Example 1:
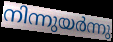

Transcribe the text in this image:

നിന്നുയർന്നു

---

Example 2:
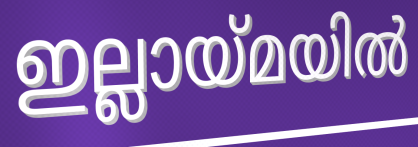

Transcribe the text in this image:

ഇല്ലായ്മയിൽ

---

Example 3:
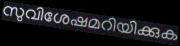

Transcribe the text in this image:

സുവിശേഷമറിയിക്കുക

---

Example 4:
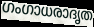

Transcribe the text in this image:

ഗംഗാധരാദൃത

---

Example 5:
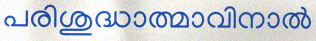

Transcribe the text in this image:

പരിശുദ്ധാത്മാവിനാൽ